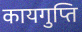
कायगुप्ति